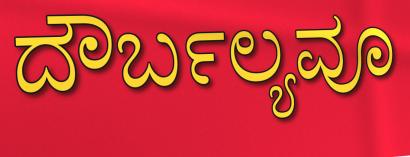
ದೌರ್ಬಲ್ಯವೂ